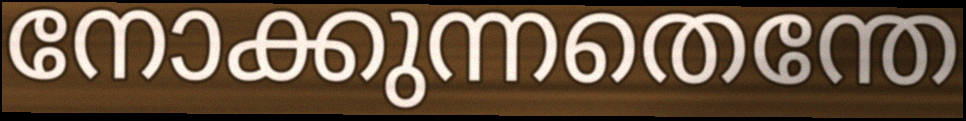
നോക്കുന്നതെന്തേ